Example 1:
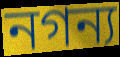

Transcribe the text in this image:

নগন্য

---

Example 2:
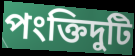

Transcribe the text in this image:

পংক্তিদুটি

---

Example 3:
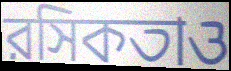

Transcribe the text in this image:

রসিকতাও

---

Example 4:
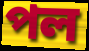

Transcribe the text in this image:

পল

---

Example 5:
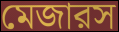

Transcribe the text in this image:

মেজারস